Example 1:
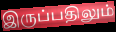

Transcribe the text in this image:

இருப்பதிலும்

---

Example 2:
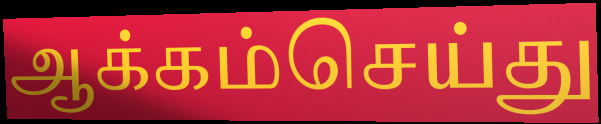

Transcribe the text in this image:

ஆக்கம்செய்து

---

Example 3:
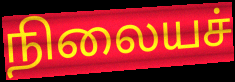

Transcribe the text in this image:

நிலையச்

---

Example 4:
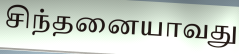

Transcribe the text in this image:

சிந்தனையாவது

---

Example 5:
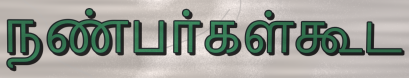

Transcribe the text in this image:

நண்பர்கள்கூட